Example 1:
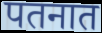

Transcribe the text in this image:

पतनात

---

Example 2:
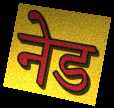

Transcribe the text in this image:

नेड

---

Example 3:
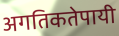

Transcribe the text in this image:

अगतिकतेपायी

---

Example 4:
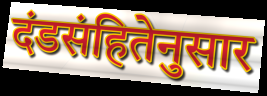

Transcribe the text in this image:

दंडसंहितेनुसार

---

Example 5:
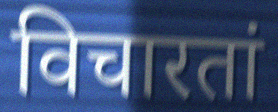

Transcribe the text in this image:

विचारतां